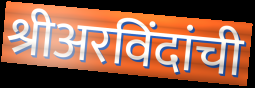
श्रीअरविंदांची